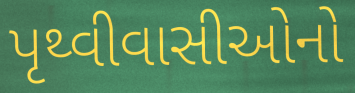
પૃથ્વીવાસીઓનો